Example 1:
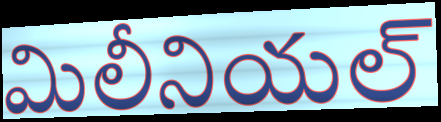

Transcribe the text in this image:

మిలీనియల్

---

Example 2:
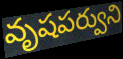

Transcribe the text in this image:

వృషపర్వుని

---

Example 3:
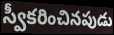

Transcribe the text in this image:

స్వీకరించినపుడు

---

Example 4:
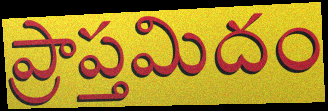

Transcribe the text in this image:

ప్రాప్తమిదం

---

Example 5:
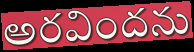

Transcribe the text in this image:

అరవిందను